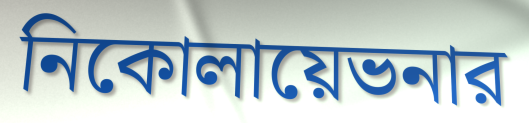
নিকোলায়েভনার